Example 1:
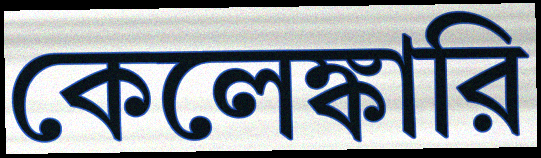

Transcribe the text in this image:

কেলেঙ্কারি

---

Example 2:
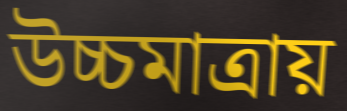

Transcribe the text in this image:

উচ্চমাত্রায়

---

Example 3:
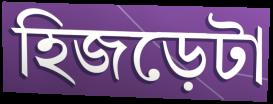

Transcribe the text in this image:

হিজড়েটা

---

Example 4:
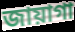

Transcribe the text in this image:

জায়াগা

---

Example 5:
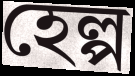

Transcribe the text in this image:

হেল্প